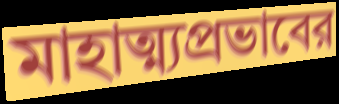
মাহাত্ম্যপ্রভাবের